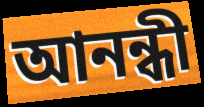
আনন্ধী